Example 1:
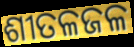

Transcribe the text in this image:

ଶୀତଳଜଳ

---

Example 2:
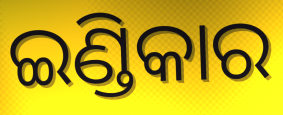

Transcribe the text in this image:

ଇଣ୍ଡିକାର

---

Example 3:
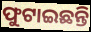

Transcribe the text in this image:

ଫୁଟାଇଛନ୍ତି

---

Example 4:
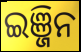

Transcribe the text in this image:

ଇଞ୍ଜିନ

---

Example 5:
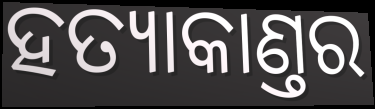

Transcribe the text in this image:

ହତ୍ୟାକାଣ୍ତର